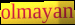
olmayan